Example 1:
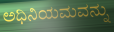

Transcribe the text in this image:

ಅಧಿನಿಯಮವನ್ನು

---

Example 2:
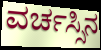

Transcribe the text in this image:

ವರ್ಚಸ್ಸಿನ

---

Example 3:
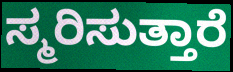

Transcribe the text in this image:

ಸ್ಮರಿಸುತ್ತಾರೆ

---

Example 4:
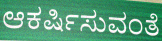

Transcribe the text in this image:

ಆಕರ್ಷಿಸುವಂತೆ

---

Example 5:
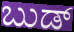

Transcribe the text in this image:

ಬುಡ್